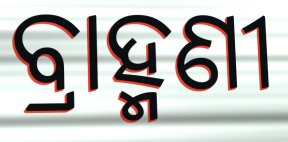
ବ୍ରାହ୍ମଣୀ